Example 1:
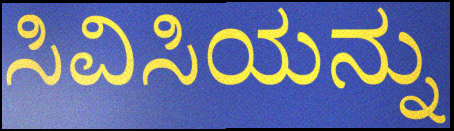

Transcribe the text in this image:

ಸಿವಿಸಿಯನ್ನು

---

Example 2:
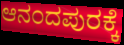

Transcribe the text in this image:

ಆನಂದಪುರಕ್ಕೆ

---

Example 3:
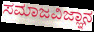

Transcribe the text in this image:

ಸಮಾಜವಿಜ್ಞಾನ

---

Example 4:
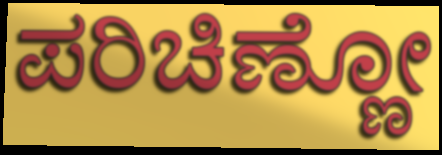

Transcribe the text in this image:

ಪರಿಚಿಣ್ಣೋ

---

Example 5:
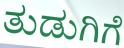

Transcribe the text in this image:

ತುಡುಗಿಗೆ